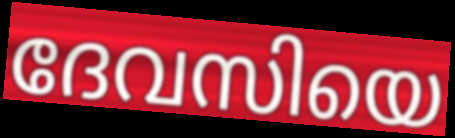
ദേവസിയെ